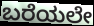
ಬರೆಯಲೇ